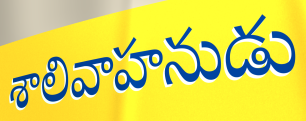
శాలివాహనుడు